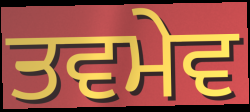
ਤਵਮੇਵ